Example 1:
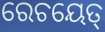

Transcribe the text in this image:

ରେଚୟେତ୍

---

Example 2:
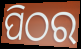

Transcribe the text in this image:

ପିଠର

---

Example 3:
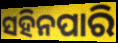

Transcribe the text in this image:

ସହିନପାରି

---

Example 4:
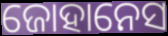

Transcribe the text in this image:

ଜୋହାନେସ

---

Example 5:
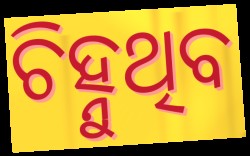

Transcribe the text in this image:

ଚିହ୍ନୁଥିବ